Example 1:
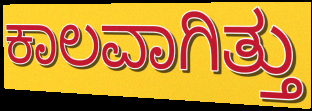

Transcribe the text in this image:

ಕಾಲವಾಗಿತ್ತು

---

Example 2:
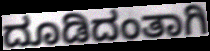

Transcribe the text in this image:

ದೂಡಿದಂತಾಗಿ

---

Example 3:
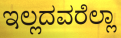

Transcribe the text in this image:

ಇಲ್ಲದವರೆಲ್ಲಾ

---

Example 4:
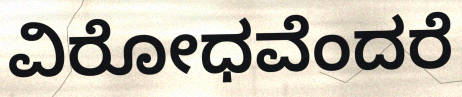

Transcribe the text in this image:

ವಿರೋಧವೆಂದರೆ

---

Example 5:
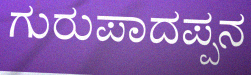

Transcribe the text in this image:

ಗುರುಪಾದಪ್ಪನ